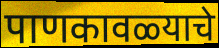
पाणकावळ्याचे